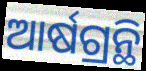
ଆର୍ଷଗ୍ରନ୍ଥି